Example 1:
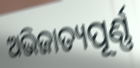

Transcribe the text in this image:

ଅଭିଜାତ୍ୟପୂର୍ଣ୍ଣ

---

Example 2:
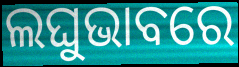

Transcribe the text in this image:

ଲଘୁଭାବରେ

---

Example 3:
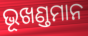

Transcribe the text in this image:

ଭୂଖଣ୍ଡମାନ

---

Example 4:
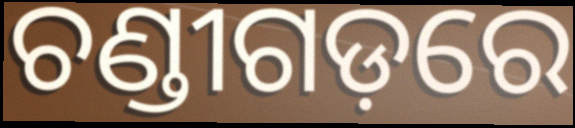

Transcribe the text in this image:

ଚଣ୍ଡୀଗଡ଼ରେ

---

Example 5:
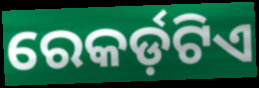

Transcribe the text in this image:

ରେକର୍ଡ଼ଟିଏ